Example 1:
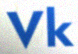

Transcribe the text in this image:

Vk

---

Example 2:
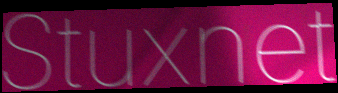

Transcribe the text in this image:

Stuxnet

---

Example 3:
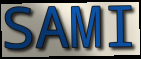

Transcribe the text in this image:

SAMI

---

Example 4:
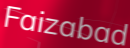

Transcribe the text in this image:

Faizabad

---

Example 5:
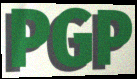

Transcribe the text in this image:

PGP